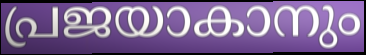
പ്രജയാകാനും